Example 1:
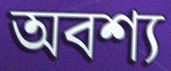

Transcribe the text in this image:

অবশ্য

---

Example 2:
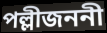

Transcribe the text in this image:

পল্লীজননী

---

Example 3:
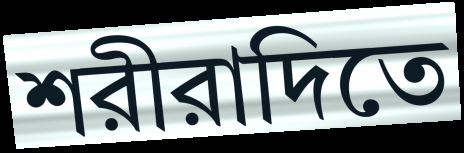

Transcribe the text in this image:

শরীরাদিতে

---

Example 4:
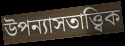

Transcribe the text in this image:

উপন্যাসতাত্ত্বিক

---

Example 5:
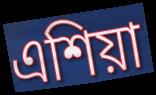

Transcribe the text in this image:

এশিয়া